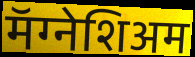
मॅग्नेशिअम